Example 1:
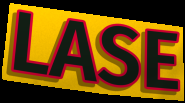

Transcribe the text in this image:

LASE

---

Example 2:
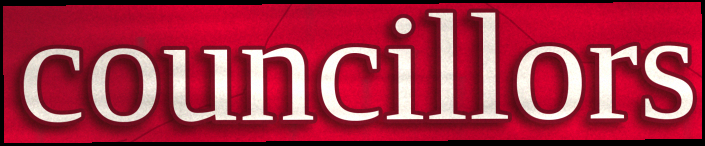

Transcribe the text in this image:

councillors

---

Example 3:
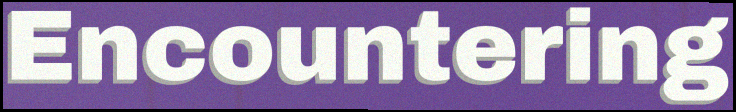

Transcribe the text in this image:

Encountering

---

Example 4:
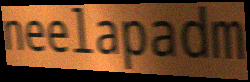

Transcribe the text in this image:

neelapadm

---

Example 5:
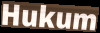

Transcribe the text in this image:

Hukum